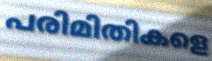
പരിമിതികളെ